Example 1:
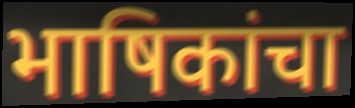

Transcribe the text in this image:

भाषिकांचा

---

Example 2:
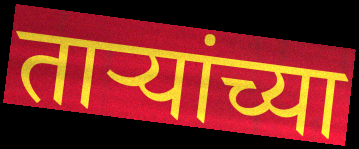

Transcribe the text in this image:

तार्‍यांच्या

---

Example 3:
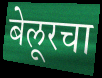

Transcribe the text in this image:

बेलूरचा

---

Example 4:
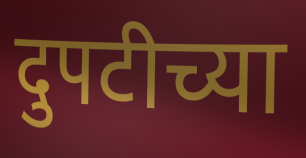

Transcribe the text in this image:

दुपटीच्या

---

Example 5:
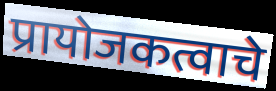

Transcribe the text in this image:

प्रायोजकत्वाचे